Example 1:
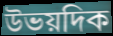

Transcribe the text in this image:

উভয়দিক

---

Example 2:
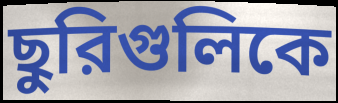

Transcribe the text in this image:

ছুরিগুলিকে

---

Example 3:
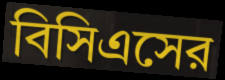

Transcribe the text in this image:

বিসিএসের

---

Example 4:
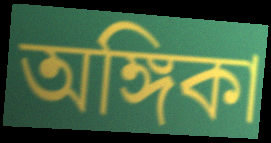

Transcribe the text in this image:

অঙ্গিকা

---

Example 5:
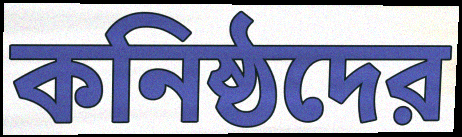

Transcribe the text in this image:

কনিষ্ঠদের